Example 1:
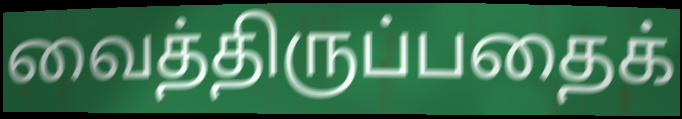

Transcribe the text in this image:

வைத்திருப்பதைக்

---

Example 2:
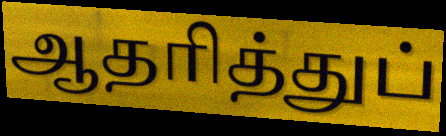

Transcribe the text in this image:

ஆதரித்துப்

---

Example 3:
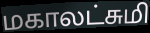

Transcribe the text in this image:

மகாலட்சுமி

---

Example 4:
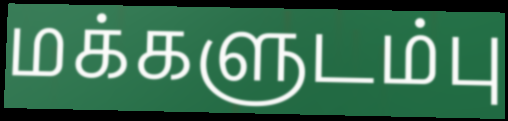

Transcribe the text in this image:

மக்களுடம்பு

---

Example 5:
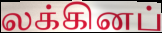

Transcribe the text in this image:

லக்கினப்